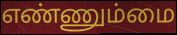
எண்ணும்மை